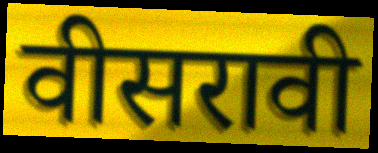
वीसरावी